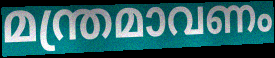
മന്ത്രമാവണം